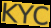
KYC